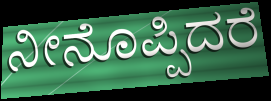
ನೀನೊಪ್ಪಿದರೆ